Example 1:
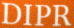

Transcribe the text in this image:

DIPR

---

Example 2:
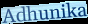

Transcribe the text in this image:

Adhunika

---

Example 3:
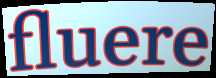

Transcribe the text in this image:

fluere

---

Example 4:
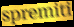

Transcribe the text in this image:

spremiti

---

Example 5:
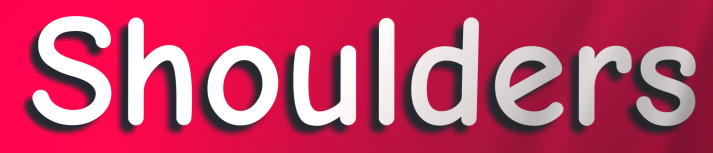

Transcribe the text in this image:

Shoulders